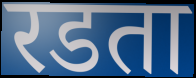
रडता